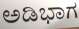
ಅಡಿಭಾಗ